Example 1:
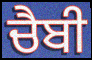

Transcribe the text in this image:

ਚੈਬੀ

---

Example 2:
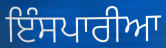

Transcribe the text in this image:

ਇੰਸਪਾਰੀਆ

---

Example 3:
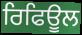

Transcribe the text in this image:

ਰਿਫਿਊਲ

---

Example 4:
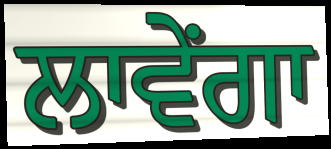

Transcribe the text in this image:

ਲਾਵੇਂਗਾ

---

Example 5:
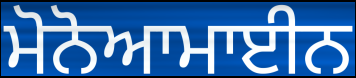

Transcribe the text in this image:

ਮੋਨੋਆਮਾਈਨ